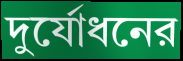
দুর্যোধনের